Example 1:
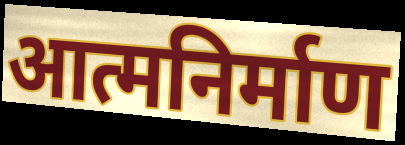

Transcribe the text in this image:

आत्मनिर्माण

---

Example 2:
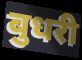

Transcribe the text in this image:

बुधरी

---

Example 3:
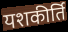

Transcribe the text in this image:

यशकीर्ति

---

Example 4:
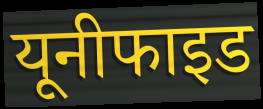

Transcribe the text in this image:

यूनीफाइड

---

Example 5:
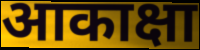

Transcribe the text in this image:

आकाक्षा